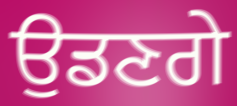
ਉਡਣਗੇ